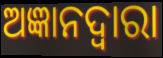
ଅଜ୍ଞାନଦ୍ଵାରା